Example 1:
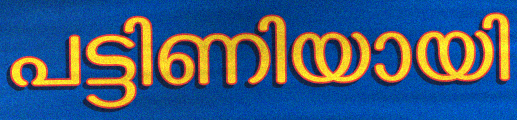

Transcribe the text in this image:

പട്ടിണിയായി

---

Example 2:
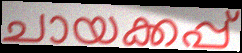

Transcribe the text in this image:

ചായക്കപ്പ്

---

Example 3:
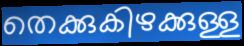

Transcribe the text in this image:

തെക്കുകിഴക്കുള്ള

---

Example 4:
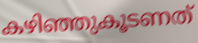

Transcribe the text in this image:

കഴിഞ്ഞുകൂടണത്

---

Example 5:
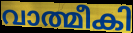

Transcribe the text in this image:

വാത്മീകി